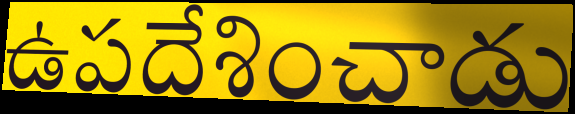
ఉపదేశించాడు